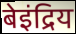
बेइंद्रिय